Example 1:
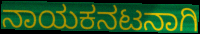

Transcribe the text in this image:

ನಾಯಕನಟನಾಗಿ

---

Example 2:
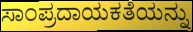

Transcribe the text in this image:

ಸಾಂಪ್ರದಾಯಕತೆಯನ್ನು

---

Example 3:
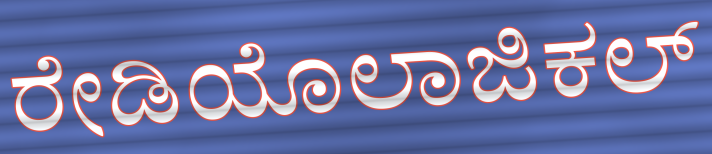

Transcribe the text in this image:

ರೇಡಿಯೊಲಾಜಿಕಲ್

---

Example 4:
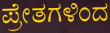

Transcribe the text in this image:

ಪ್ರೇತಗಳಿಂದ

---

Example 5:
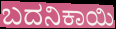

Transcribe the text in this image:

ಬದನಿಕಾಯಿ